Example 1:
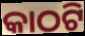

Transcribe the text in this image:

କାଠଟି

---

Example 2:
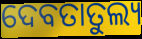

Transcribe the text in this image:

ଦେବତାତୁଲ୍ୟ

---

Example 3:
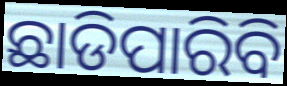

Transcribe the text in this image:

ଛାଡିପାରିବି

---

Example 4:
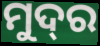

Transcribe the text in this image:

ମୁଦ୍‌ର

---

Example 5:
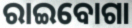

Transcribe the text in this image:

ରାଇବୋଗା